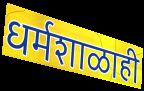
धर्मशाळाही